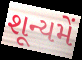
શૂન્યમેં